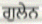
ਗੁਲੇਨ